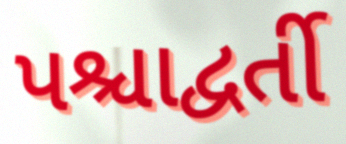
પશ્ચાદ્વર્તી